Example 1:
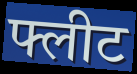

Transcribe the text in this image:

फ्लीट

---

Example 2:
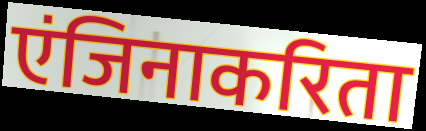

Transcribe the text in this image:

एंजिनाकरिता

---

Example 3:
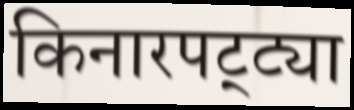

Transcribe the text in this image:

किनारपट्ट्या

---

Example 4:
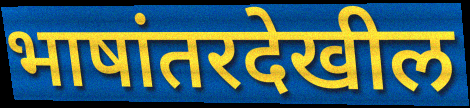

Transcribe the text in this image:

भाषांतरदेखील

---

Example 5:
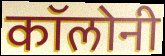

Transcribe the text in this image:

कॉलोनी